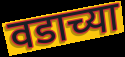
वडाच्या